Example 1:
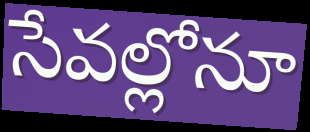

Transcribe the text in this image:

సేవల్లోనూ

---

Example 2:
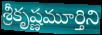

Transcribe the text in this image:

శ్రీకృష్ణమూర్తిని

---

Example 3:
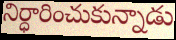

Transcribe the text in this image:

నిర్ధారించుకున్నాడు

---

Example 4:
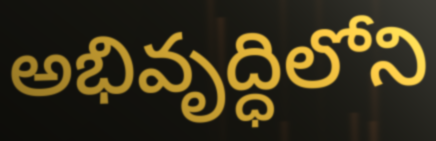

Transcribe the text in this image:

అభివృద్ధిలోని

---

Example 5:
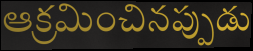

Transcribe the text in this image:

ఆక్రమించినప్పుడు